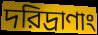
দরিদ্রাণাং